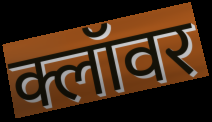
क्लॉवर